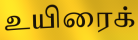
உயிரைக்